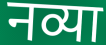
नव्या